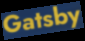
Gatsby